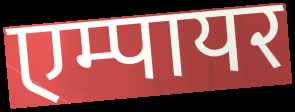
एम्पायर